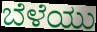
ಬೆಳೆಯು